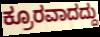
ಕ್ರೂರವಾದದ್ದು